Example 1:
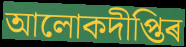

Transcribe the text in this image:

আলোকদীপ্তিৰ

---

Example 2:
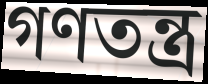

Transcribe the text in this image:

গণতন্ত্ৰ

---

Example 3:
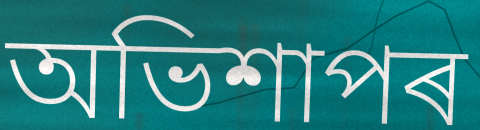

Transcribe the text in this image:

অভিশাপৰ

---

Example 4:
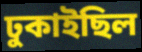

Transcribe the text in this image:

ঢুকাইছিল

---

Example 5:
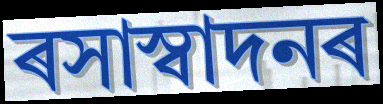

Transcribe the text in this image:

ৰসাস্বাদনৰ